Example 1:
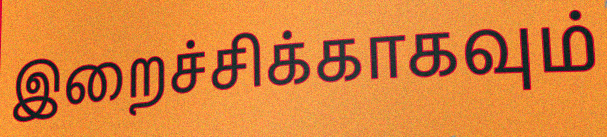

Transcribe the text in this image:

இறைச்சிக்காகவும்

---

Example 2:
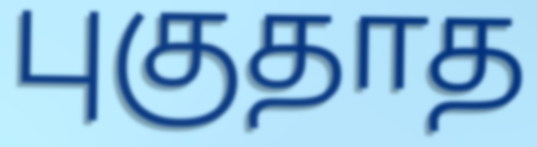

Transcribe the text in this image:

புகுதாத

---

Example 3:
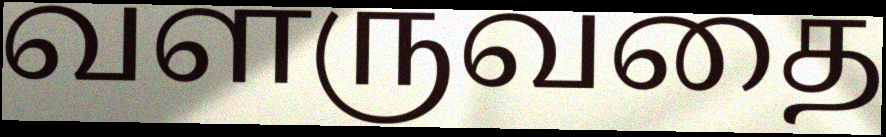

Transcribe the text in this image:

வளருவதை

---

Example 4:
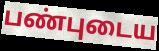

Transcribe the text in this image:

பண்புடைய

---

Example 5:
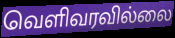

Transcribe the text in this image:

வெளிவரவில்லை